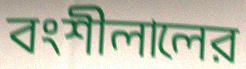
বংশীলালের